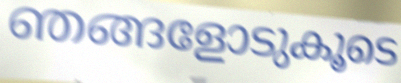
ഞങ്ങളോടുകൂടെ